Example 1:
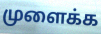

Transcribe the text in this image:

முளைக்க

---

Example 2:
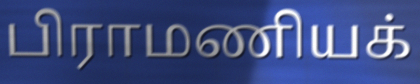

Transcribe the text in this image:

பிராமணியக்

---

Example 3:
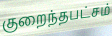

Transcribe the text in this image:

குறைந்தபட்சம்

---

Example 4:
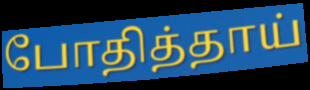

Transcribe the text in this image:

போதித்தாய்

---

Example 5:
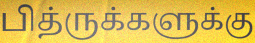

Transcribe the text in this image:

பித்ருக்களுக்கு